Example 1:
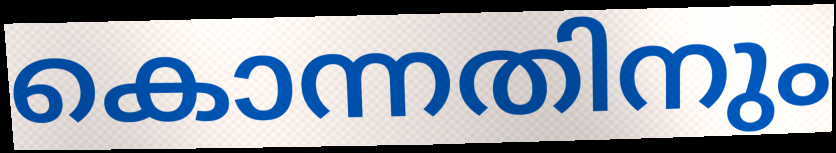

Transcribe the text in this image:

കൊന്നതിനും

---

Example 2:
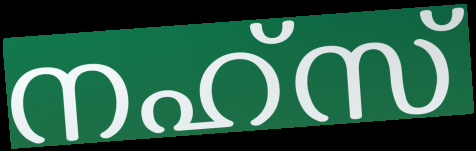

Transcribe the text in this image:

നഹ്സ്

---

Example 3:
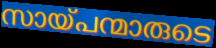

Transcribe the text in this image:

സായ്പന്മാരുടെ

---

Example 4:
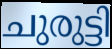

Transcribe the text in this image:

ചുരുട്ടി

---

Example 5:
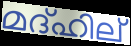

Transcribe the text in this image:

മദ്ഹില്